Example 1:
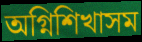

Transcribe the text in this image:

অগ্নিশিখাসম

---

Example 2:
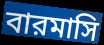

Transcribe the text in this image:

বারমাসি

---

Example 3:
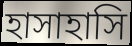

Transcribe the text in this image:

হাসাহাসি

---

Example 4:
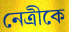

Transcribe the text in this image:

নেত্রীকে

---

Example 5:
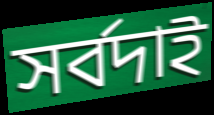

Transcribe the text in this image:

সর্বদাই